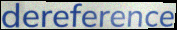
dereference